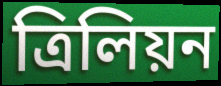
ত্ৰিলিয়ন